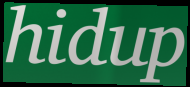
hidup